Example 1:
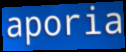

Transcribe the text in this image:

aporia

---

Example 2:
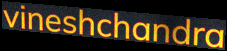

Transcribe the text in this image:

vineshchandra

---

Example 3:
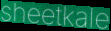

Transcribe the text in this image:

sheetkale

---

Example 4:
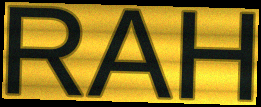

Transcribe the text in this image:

RAH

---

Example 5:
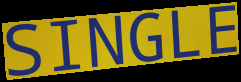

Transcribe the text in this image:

SINGLE